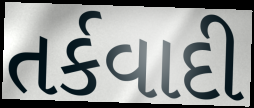
તર્કવાદી